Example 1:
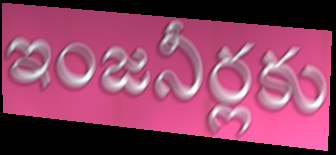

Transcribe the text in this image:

ఇంజనీర్లకు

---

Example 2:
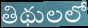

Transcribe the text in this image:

తిథులలో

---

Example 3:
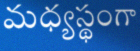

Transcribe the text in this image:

మధ్యస్థంగా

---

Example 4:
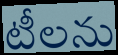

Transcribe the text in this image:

టీలను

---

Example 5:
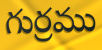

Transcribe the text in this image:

గుర్రము